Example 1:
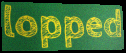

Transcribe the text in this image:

lopped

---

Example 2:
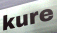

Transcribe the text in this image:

kure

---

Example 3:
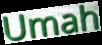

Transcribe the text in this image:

Umah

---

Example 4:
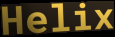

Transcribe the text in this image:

Helix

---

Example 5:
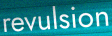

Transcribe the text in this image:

revulsion